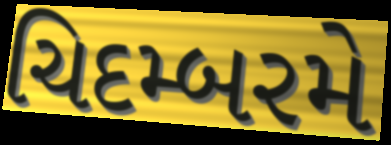
ચિદમ્બરમે